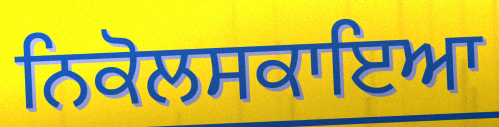
ਨਿਕੋਲਸਕਾਇਆ